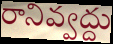
రానివ్వద్దు